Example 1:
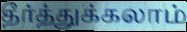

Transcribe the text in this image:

தீர்த்துக்கலாம்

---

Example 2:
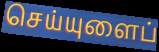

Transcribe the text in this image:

செய்யுளைப்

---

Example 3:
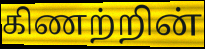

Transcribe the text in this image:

கிணற்றின்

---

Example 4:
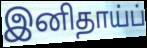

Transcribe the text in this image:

இனிதாய்ப்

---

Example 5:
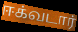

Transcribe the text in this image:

ஈக்வடார்